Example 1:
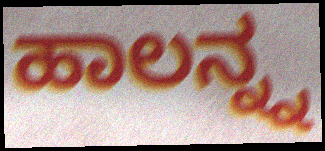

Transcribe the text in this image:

ಹಾಲನ್ನ್ನ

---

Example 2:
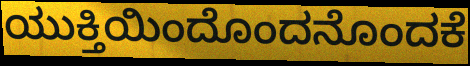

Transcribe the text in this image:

ಯುಕ್ತಿಯಿಂದೊಂದನೊಂದಕೆ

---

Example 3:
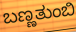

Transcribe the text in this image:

ಬಣ್ಣತುಂಬಿ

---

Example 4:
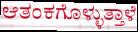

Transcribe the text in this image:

ಆತಂಕಗೊಳ್ಳುತ್ತಾಳೆ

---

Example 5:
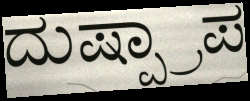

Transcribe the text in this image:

ದುಷ್ಪ್ರಾಪ